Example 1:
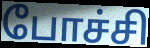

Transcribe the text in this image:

போச்சி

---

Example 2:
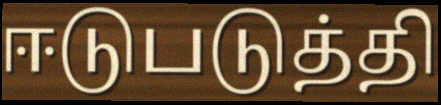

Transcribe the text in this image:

ஈடுபடுத்தி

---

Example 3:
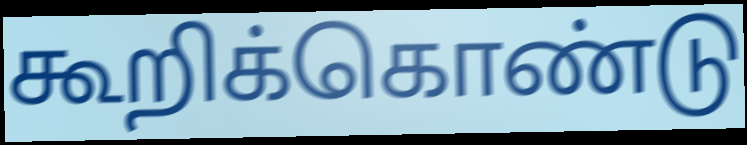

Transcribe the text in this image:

கூறிக்கொண்டு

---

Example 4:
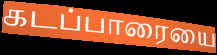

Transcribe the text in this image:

கடப்பாரையை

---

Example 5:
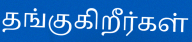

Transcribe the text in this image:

தங்குகிறீர்கள்